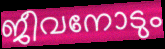
ജീവനോടും